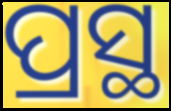
ପ୍ରସ୍ଥ